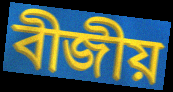
বীজীয়